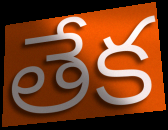
తేక